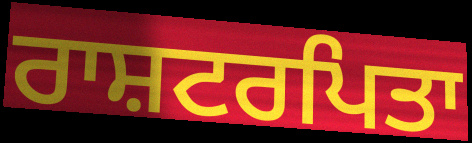
ਰਾਸ਼ਟਰਪਿਤਾ